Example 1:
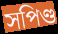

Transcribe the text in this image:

সপিণ্ড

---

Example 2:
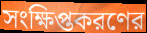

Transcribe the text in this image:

সংক্ষিপ্তকরণের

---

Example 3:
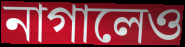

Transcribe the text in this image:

নাগালেও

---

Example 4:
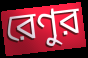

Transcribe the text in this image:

রেণুর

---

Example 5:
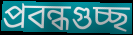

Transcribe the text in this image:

প্রবন্ধগুচ্ছ